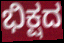
ಭಿಕ್ಷದ